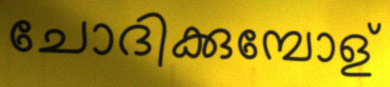
ചോദിക്കുമ്പോള്